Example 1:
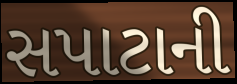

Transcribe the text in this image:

સપાટાની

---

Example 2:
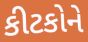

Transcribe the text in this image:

કીટકોને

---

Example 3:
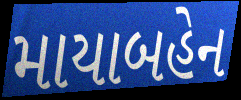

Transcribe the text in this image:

માયાબહેન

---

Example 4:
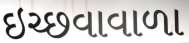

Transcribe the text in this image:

ઇચ્છવાવાળા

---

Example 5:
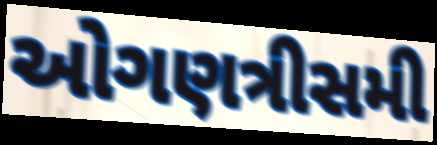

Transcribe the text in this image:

ઓગણત્રીસમી